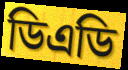
ডিএডি